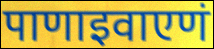
पाणाइवाएणं